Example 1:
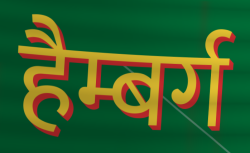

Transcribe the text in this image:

हैम्बर्ग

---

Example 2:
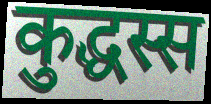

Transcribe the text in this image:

कुद्धस्स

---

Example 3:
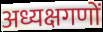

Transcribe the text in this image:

अध्यक्षगणों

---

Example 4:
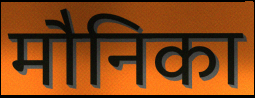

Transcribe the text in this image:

मौनिका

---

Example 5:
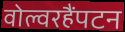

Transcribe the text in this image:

वोल्वरहैंपटन